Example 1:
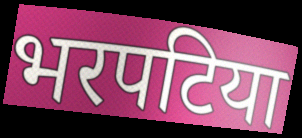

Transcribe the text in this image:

भरपटिया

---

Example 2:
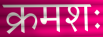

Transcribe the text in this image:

क्रमशः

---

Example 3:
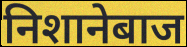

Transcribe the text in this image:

निशानेबाज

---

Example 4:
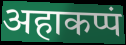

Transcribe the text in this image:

अहाकप्पं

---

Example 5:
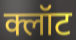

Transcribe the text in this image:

क्‍लॉट